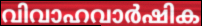
വിവാഹവാർഷിക